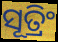
ସୂତ୍ରିଂ